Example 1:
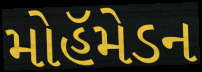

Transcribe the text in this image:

મોહૅમેડન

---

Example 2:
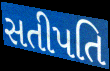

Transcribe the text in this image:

સતીપતિ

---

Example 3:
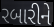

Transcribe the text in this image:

રબારીને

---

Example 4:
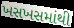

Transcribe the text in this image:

ખસખસમાંથી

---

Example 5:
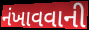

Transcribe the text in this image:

નંખાવવાની